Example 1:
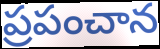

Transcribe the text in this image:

ప్రపంచాన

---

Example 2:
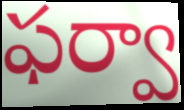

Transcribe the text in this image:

ఫర్వా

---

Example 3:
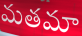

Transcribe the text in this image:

మతమా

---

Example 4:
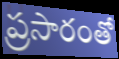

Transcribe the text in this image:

ప్రసారంతో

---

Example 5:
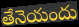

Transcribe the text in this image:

తేనెయందు